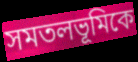
সমতলভূমিকে